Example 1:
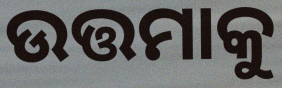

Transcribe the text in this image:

ଉତ୍ତମାକୁ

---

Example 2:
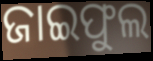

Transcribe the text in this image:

ଜାଇଫୁଲ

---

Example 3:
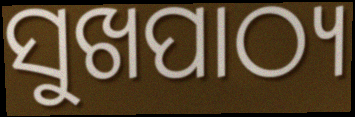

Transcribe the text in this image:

ସୁଖପାଠ୍ୟ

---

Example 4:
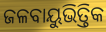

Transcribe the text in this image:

ଜଳବାୟୁଭିତ୍ତିକ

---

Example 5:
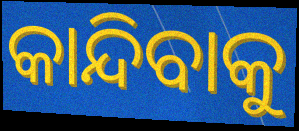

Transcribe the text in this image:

କାନ୍ଦିବାକୁ